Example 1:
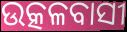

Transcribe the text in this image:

ଉତ୍କଳବାସୀ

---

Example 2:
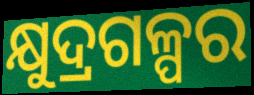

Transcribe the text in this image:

କ୍ଷୁଦ୍ରଗଳ୍ପର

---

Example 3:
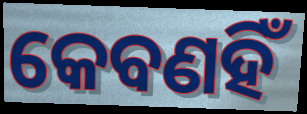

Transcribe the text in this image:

କେବଣହିଁ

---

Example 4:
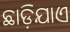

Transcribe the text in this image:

ଛାଡ଼ିଯାଏ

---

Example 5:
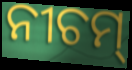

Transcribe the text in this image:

ନୀଚମ୍